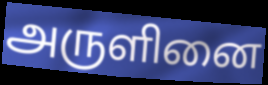
அருளினை